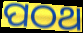
ପଠଥ